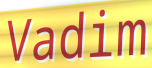
Vadim